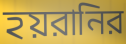
হয়রানির